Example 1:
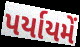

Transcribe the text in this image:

પર્યાયમેં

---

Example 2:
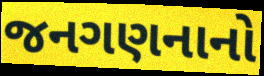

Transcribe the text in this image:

જનગણનાનો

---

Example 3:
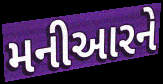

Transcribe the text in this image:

મનીઆરને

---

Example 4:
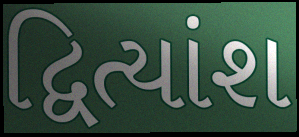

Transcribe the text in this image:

દ્વિત્યાંશ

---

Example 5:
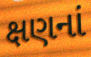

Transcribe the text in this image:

ક્ષણનાં